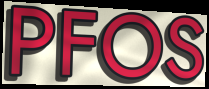
PFOS